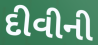
દીવીની